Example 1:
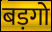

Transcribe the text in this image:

बड़गो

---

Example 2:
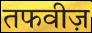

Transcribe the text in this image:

तफवीज़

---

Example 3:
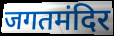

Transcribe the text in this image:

जगतमंदिर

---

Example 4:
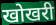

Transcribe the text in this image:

खोखरी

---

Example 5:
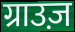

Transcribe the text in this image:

ग्राउज़